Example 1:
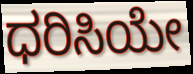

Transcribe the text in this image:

ಧರಿಸಿಯೇ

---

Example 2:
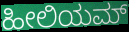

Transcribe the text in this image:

ಹೀಲಿಯಮ್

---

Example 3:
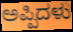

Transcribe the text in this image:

ಅಪ್ಪಿದಳು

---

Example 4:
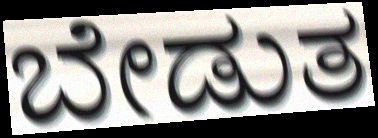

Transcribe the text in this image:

ಬೇಡುತ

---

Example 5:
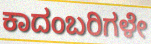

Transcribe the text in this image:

ಕಾದಂಬರಿಗಳೇ